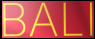
BALI